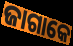
ଜାଗାକେ